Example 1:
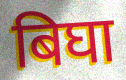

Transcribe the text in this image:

बिघा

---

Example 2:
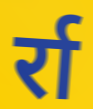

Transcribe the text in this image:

र्रा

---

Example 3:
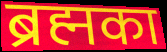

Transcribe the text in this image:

ब्रह्मका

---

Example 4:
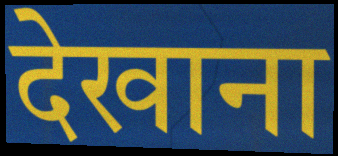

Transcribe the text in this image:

देखाना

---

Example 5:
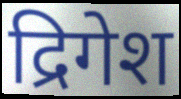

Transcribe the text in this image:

द्रिगेश